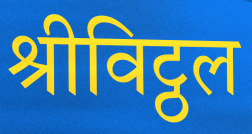
श्रीविट्ठल